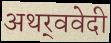
अथर्ववेदी